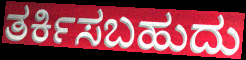
ತರ್ಕಿಸಬಹುದು